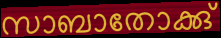
സാബാതോക്കു്